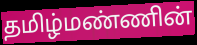
தமிழ்மண்ணின்